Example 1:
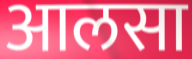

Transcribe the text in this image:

आलसा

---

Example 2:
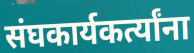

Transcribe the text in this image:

संघकार्यकर्त्यांना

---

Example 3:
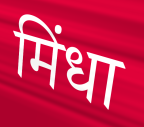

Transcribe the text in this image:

मिंधा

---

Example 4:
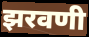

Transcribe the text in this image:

झरवणी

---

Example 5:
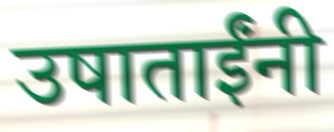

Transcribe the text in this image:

उषाताईंनी